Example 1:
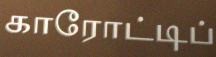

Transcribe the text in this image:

காரோட்டிப்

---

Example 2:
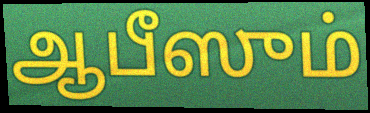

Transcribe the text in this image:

ஆபீஸும்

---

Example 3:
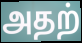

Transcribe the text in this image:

அதற்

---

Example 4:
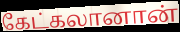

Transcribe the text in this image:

கேட்கலானான்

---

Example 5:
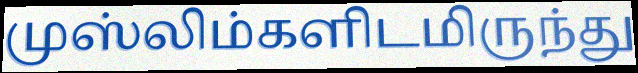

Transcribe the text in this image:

முஸ்லிம்களிடமிருந்து